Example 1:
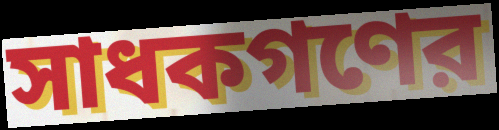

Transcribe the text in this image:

সাধকগণের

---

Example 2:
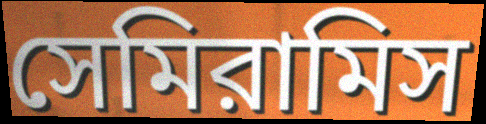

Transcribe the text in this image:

সেমিরামিস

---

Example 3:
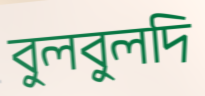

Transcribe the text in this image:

বুলবুলদি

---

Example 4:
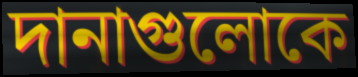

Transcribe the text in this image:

দানাগুলোকে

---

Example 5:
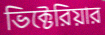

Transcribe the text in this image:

ভিক্টেরিয়ার